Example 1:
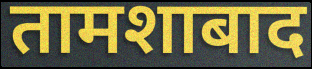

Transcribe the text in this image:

तामशाबाद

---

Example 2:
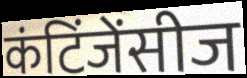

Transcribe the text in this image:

कंटिंजेंसीज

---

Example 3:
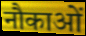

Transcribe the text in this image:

नौकाओं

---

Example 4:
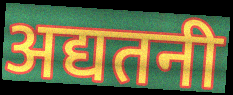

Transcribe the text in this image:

अद्यतनी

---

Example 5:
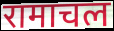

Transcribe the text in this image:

रामाचल